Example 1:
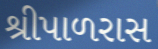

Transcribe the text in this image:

શ્રીપાળરાસ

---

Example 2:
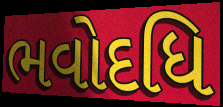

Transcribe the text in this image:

ભવોદધિ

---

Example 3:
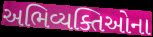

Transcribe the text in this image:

અભિવ્યક્તિઓના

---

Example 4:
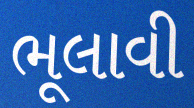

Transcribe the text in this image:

ભૂલાવી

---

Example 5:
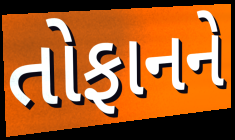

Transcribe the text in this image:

તોફાનને